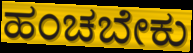
ಹಂಚಬೇಕು